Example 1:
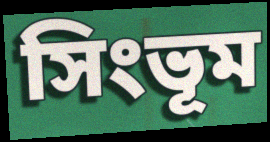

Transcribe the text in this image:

সিংভূম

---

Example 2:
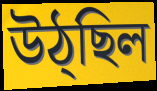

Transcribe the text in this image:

উঠ্ছিল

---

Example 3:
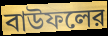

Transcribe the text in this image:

বাউফলের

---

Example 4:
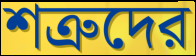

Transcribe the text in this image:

শত্রুদের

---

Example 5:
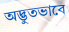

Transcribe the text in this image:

অদ্ভুতভাবে